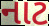
નાટ